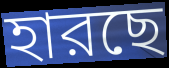
হারছে